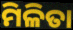
ମିଳିତା